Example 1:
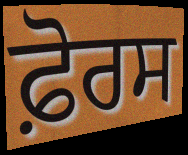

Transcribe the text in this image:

ਫ਼ੋਰਸ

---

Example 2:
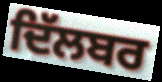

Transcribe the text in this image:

ਦਿੱਲਬਰ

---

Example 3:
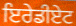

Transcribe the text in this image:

ਇਰੇਡੀਏਟ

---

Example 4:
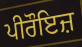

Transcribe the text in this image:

ਪੀਰੌਇਜ਼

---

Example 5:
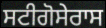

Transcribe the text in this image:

ਸਟੀਗੋਸੇਰਾਸ